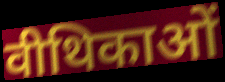
वीथिकाओं